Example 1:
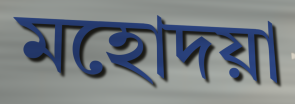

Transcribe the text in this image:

মহোদয়া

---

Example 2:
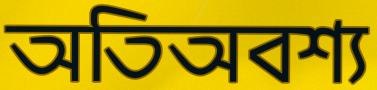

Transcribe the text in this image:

অতিঅবশ্য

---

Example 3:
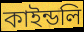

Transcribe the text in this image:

কাইন্ডলি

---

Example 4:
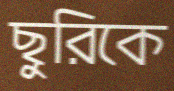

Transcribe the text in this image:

ছুরিকে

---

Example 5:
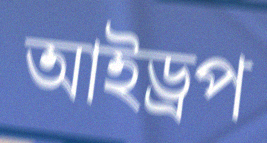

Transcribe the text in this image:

আইড্রপ